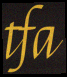
tfa